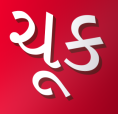
ચૂક